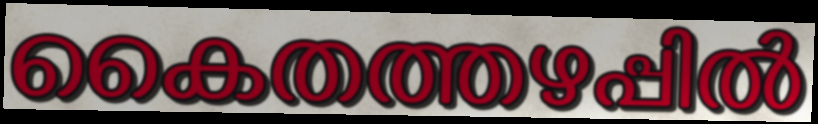
കൈതത്തഴപ്പിൽ